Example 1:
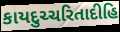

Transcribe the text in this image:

કાયદુચ્ચરિતાદીહિ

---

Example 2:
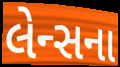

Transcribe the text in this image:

લેન્સના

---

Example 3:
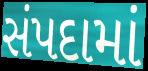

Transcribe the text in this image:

સંપદામાં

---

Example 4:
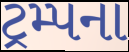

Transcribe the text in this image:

ટ્રમ્પના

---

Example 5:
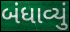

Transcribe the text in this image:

બંધાવ્યું